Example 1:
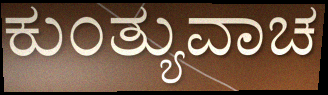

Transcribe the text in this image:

ಕುಂತ್ಯುವಾಚ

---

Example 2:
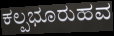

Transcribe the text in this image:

ಕಲ್ಪಭೂರುಹವ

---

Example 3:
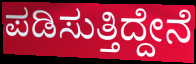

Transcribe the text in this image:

ಪಡಿಸುತ್ತಿದ್ದೇನೆ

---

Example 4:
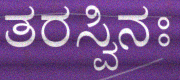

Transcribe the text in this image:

ತರಸ್ವಿನಃ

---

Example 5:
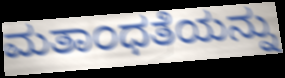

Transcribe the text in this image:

ಮತಾಂಧತೆಯನ್ನು